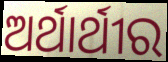
ଅର୍ଥାର୍ଥୀର